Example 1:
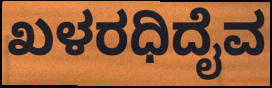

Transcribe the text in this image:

ಖಳರಧಿದೈವ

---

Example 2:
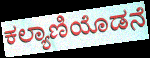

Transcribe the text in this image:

ಕಲ್ಯಾಣಿಯೊಡನೆ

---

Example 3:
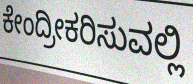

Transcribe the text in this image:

ಕೇಂದ್ರೀಕರಿಸುವಲ್ಲಿ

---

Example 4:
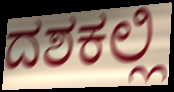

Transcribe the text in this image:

ದಶಕಲ್ಲಿ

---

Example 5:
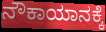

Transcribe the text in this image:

ನೌಕಾಯಾನಕ್ಕೆ